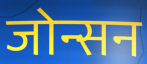
जोन्सन